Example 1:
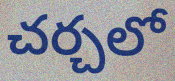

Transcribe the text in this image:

చర్చలో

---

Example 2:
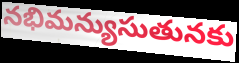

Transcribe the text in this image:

నభిమన్యుసుతునకు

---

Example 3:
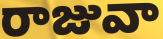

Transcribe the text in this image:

రాజువా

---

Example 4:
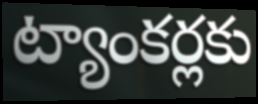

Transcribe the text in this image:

ట్యాంకర్లకు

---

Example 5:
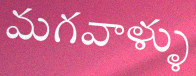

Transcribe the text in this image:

మగవాళ్ళు